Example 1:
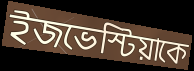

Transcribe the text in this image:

ইজভেস্টিয়াকে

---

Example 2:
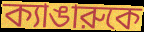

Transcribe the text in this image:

ক্যাঙারুকে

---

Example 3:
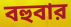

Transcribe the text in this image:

বহুবার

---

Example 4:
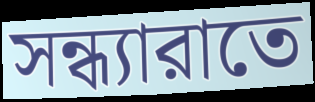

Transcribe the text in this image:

সন্ধ্যারাতে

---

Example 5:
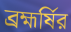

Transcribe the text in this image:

ব্রহ্মর্ষির